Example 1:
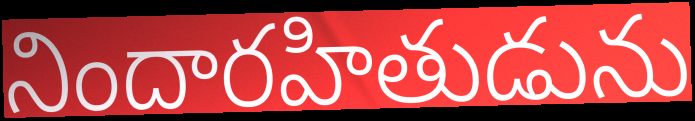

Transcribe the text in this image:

నిందారహితుడును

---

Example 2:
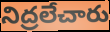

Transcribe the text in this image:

నిద్రలేచారు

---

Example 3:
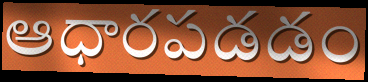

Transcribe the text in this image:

ఆధారపడడం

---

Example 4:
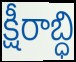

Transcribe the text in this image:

క్షీరాబ్ధి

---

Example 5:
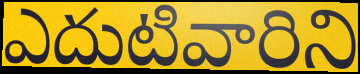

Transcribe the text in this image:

ఎదుటివారిని